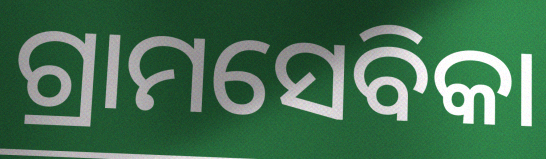
ଗ୍ରାମସେବିକା